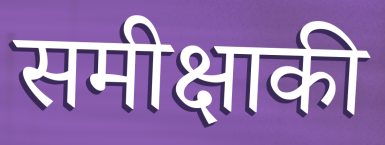
समीक्षाकी